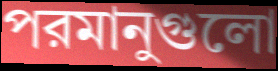
পরমানুগুলো